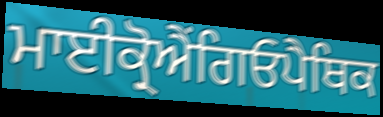
ਮਾਈਕ੍ਰੋਐਂਗਿਓਪੈਥਿਕ